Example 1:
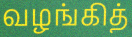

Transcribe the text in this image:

வழங்கித்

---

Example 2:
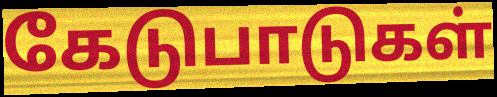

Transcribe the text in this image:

கேடுபாடுகள்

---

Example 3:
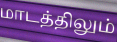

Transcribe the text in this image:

மாடத்திலும்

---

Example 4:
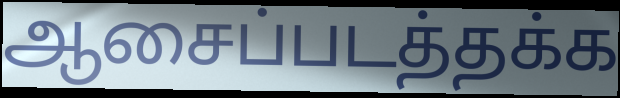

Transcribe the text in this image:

ஆசைப்படத்தக்க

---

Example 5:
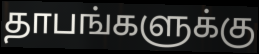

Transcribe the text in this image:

தாபங்களுக்கு